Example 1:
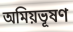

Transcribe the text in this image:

অমিয়ভূষণ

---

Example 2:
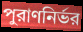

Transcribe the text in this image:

পুরাণনির্ভর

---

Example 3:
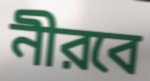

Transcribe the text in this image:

নীরবে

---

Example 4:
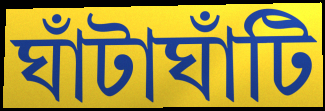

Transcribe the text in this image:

ঘাঁটাঘাঁটি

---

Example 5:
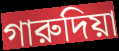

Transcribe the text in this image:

গারুদিয়া